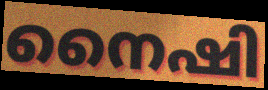
നൈഷി